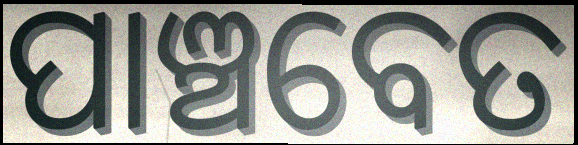
ପାଞ୍ଚବେତ